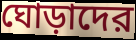
ঘোড়াদের